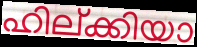
ഹില്ക്കിയാ